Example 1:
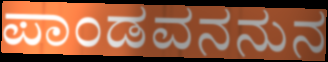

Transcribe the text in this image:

ಪಾಂಡವನನುನ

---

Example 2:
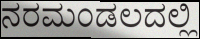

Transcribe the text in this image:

ನರಮಂಡಲದಲ್ಲಿ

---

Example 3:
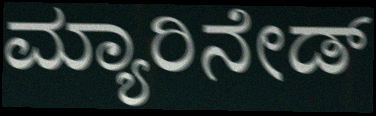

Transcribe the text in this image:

ಮ್ಯಾರಿನೇಡ್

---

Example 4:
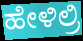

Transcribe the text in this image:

ಹೇಳಿಲ್ರಿ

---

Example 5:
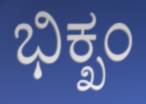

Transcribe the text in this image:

ಭಿಕ್ಖಂ